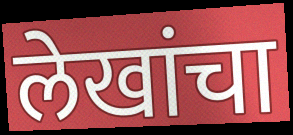
लेखांचा